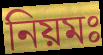
নিয়মঃ